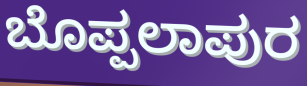
ಬೊಪ್ಪಲಾಪುರ